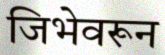
जिभेवरून